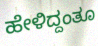
ಹೇಳಿದ್ದಂತೂ